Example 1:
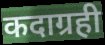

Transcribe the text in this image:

कदाग्रही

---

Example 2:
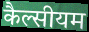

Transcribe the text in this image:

कैल्सीयम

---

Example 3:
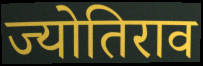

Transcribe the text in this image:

ज्योतिराव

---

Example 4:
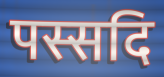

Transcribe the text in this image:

पस्सदि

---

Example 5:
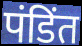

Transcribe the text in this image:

पंडिंत